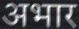
अभार